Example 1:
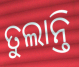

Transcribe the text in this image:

ତୁଲାନ୍ତି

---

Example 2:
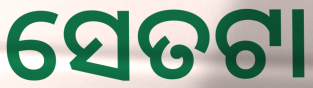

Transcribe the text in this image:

ସେତଟା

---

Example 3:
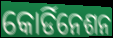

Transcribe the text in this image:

କୋର୍ଡିନେଶନ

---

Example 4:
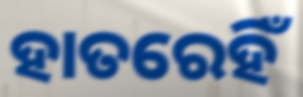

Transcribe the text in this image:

ହାତରେହିଁ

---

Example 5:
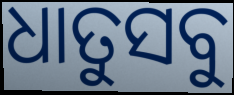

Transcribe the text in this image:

ଧାତୁସବୁ